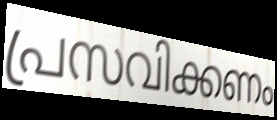
പ്രസവിക്കണം